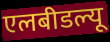
एलबीडल्यू